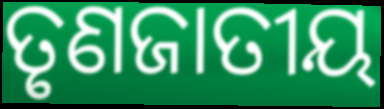
ତୃଣଜାତୀୟ